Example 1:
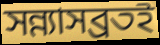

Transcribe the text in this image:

সন্ন্যাসব্রতই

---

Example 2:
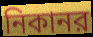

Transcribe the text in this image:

নিকানর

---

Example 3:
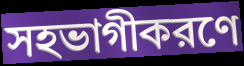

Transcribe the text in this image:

সহভাগীকরণে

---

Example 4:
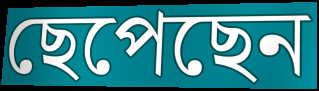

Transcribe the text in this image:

ছেপেছেন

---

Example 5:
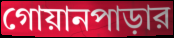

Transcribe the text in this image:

গোয়ানপাড়ার